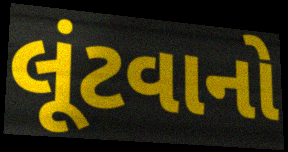
લૂંટવાનો